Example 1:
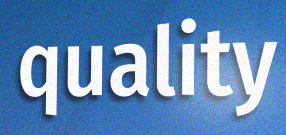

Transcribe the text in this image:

quality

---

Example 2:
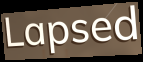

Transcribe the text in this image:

Lapsed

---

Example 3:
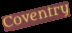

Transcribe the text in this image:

Coventry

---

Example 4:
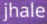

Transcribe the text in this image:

jhale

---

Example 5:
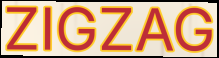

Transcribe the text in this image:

ZIGZAG